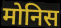
मोनिस